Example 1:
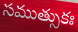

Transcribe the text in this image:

సముత్సుకః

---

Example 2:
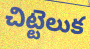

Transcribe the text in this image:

చిట్టెలుక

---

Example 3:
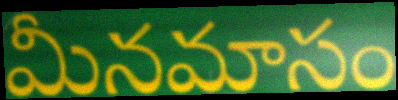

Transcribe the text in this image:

మీనమాసం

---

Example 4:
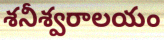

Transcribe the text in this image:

శనీశ్వరాలయం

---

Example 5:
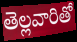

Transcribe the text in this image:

తెల్లవారితో